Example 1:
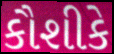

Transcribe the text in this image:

કૌશીકે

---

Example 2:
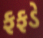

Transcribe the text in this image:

ફફડે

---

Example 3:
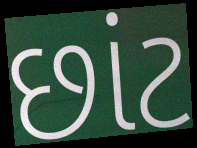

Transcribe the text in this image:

છાંટ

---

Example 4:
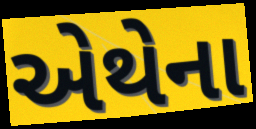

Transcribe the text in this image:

એથેના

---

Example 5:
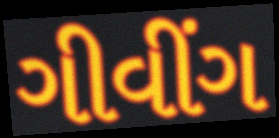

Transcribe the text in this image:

ગીવીંગ